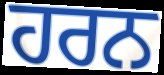
ਹਰਨ